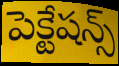
పెక్టేషన్స్